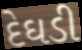
દેઘડી